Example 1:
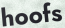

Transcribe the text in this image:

hoofs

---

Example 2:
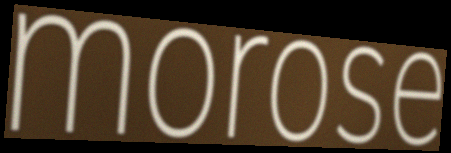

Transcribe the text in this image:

morose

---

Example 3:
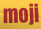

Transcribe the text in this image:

moji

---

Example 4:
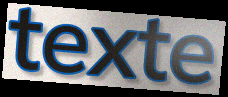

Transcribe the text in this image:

texte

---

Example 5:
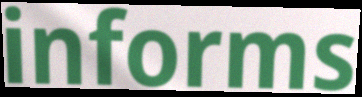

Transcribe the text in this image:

informs